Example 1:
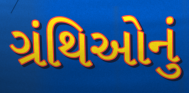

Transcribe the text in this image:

ગ્રંથિઓનું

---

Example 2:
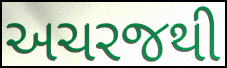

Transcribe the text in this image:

અચરજથી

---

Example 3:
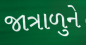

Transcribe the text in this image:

જાત્રાળુને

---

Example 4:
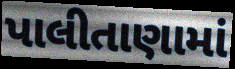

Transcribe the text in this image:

પાલીતાણામાં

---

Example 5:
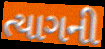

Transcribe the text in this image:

ત્‍યાગની